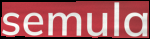
semula